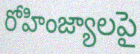
రోహింజ్యాలపై